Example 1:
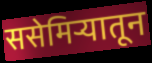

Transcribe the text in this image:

ससेमिऱ्यातून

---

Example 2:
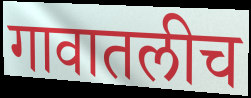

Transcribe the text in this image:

गावातलीच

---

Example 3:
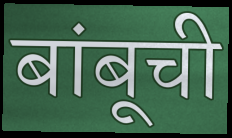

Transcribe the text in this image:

बांबूची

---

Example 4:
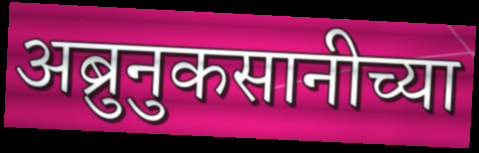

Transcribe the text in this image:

अब्रुनुकसानीच्या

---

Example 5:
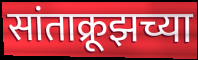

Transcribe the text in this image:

सांताक्रूझच्या